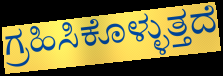
ಗ್ರಹಿಸಿಕೊಳ್ಳುತ್ತದೆ